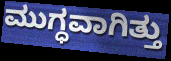
ಮುಗ್ಧವಾಗಿತ್ತು